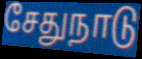
சேதுநாடு